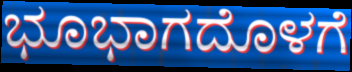
ಭೂಭಾಗದೊಳಗೆ